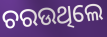
ଚରଉଥିଲେ